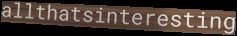
allthatsinteresting